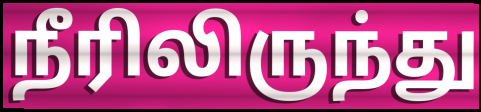
நீரிலிருந்து